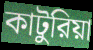
কাটুরিয়া